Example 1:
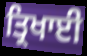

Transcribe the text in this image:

ਤ੍ਰਿਖਾਈ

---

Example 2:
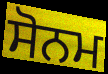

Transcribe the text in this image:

ਸੋਨਮ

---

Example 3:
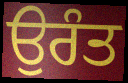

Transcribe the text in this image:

ਉਰੰਤ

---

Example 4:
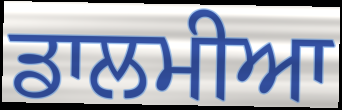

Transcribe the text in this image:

ਡਾਲਮੀਆ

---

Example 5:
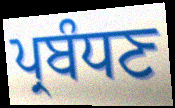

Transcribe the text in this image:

ਪ੍ਰਬੰਧਣ